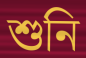
শুনি